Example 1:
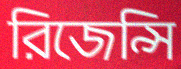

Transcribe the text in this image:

রিজেন্সি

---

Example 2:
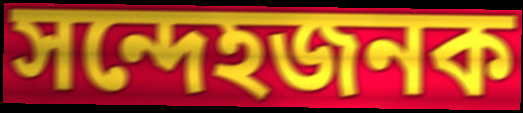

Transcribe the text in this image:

সন্দেহজনক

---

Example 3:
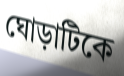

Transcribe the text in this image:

ঘোড়াটিকে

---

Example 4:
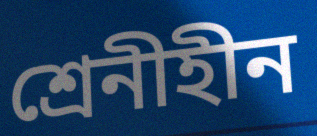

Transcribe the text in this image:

শ্রেনীহীন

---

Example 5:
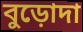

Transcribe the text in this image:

বুড়োদা